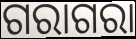
ଗରାଗରା